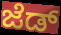
ಜೆಡ್